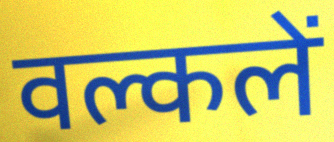
वल्कलें